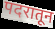
पदरातून